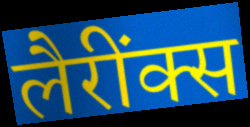
लैरींक्स